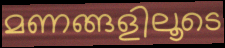
മണങ്ങളിലൂടെ